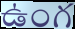
ఉంగ